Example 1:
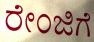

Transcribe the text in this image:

ರೇಂಜಿಗೆ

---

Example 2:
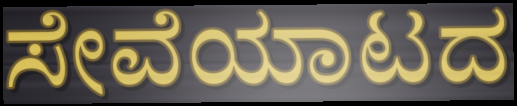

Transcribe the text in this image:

ಸೇವೆಯಾಟದ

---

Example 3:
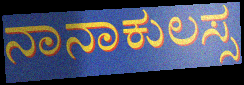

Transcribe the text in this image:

ನಾನಾಕುಲಸ್ಸ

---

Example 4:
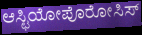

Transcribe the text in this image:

ಆಸ್ಟಿಯೋಪೊರೋಸಿಸ್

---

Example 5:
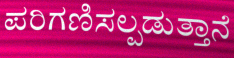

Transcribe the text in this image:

ಪರಿಗಣಿಸಲ್ಪಡುತ್ತಾನೆ